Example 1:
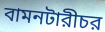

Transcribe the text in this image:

বামনটারীচর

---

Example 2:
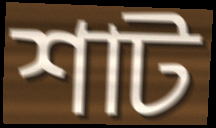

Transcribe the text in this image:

শাট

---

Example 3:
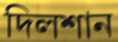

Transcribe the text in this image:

দিলশান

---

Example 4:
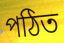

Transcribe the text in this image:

পঠিত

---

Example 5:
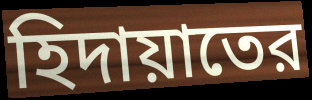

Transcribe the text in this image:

হিদায়াতের